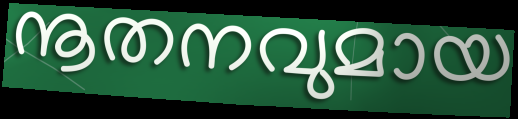
നൂതനവുമായ